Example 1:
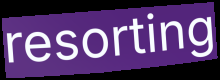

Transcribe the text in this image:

resorting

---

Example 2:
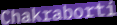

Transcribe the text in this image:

Chakraborti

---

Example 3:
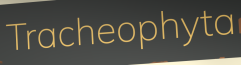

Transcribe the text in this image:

Tracheophyta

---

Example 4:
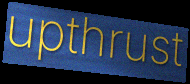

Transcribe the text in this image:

upthrust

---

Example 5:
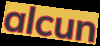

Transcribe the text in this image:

alcun